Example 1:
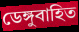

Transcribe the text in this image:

ডেঙ্গুবাহিত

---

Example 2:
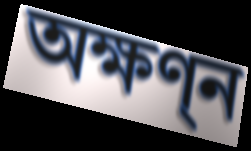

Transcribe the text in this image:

অক্ষণ্ন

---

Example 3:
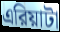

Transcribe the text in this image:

এরিয়াটা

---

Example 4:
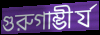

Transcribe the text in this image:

গুরুগাম্ভীর্য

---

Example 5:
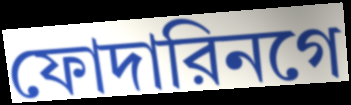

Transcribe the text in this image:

ফোদারিনগে